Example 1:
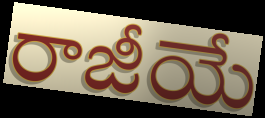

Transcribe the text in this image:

రాజీయే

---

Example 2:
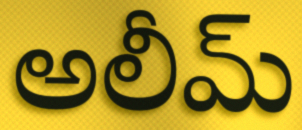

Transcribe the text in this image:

అలీమ్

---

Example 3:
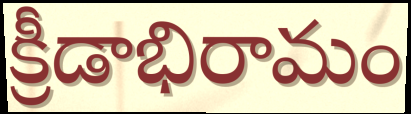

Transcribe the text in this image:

క్రీడాభిరామం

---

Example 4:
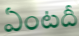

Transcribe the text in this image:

ఏంటదీ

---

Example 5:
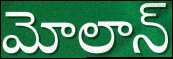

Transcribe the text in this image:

మోలాన్